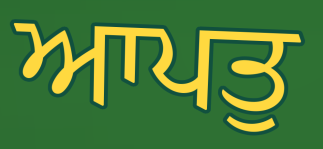
ਆਪਤੁ